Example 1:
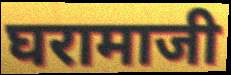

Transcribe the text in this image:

घरामाजी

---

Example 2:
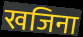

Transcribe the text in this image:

खजिना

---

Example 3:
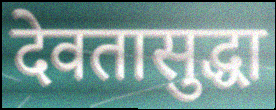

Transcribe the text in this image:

देवतासुद्धा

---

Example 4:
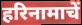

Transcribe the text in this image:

हरिनामाचें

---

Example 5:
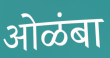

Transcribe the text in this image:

ओळंबा